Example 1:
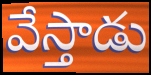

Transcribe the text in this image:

వేస్తాడు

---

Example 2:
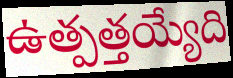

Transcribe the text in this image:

ఉత్పత్తయ్యేది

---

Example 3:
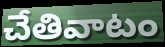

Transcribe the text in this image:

చేతివాటం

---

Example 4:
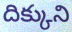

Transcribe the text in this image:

దిక్కుని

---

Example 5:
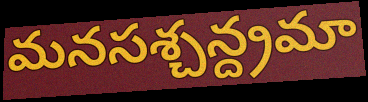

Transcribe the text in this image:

మనసశ్చన్ద్రమా